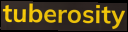
tuberosity